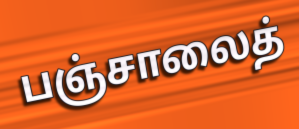
பஞ்சாலைத்